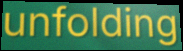
unfolding